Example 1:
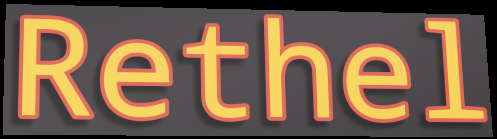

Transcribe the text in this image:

Rethel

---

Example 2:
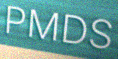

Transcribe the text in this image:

PMDS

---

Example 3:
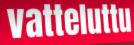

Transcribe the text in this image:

vatteluttu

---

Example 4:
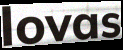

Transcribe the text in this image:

lovas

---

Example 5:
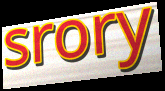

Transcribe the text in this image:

srory